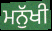
ਮਨੁੱਖੀ